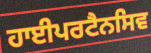
ਹਾਈਪਰਟੈਨਸਿਵ